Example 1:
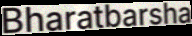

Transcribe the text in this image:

Bharatbarsha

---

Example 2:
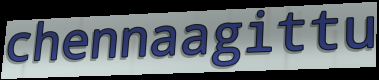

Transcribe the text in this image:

chennaagittu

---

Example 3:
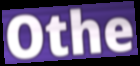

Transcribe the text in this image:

Othe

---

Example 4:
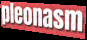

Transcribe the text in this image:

pleonasm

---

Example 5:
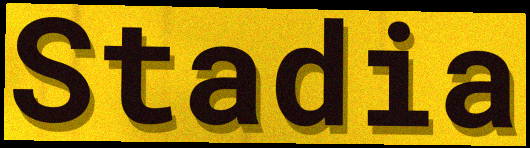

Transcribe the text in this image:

Stadia